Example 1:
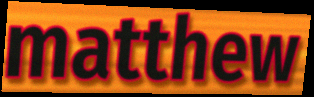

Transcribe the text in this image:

matthew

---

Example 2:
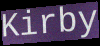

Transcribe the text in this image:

Kirby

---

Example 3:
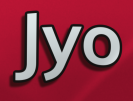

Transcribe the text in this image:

Jyo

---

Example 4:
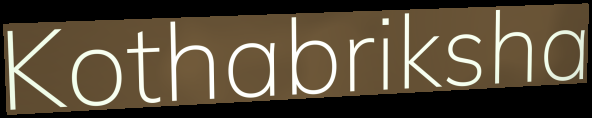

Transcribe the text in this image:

Kothabriksha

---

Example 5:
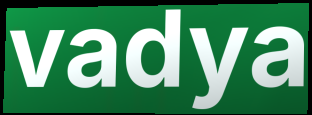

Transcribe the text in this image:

vadya